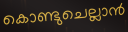
കൊണ്ടുചെല്ലാൻ